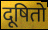
दूषितो